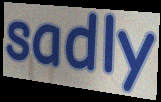
sadly